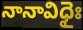
నానావిధైః